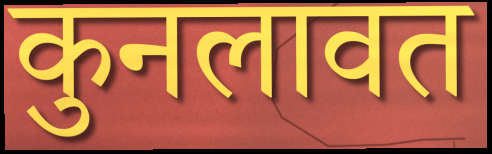
कुनलावत